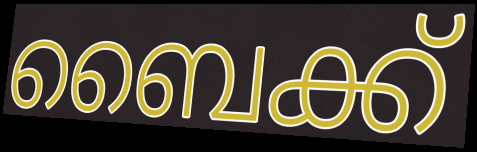
ബൈക്ക്